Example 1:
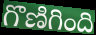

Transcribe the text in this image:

గొణిగింది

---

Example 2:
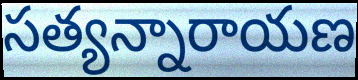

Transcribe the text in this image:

సత్యన్నారాయణ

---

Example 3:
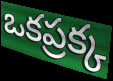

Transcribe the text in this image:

ఒకప్రక్క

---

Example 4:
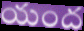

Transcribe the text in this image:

యంద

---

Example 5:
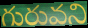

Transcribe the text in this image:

గురువని